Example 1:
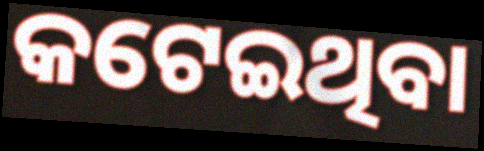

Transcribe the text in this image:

କଟେଇଥିବା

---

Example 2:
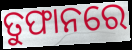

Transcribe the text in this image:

ତୁଫାନରେ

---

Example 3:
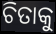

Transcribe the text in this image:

ଚିତାକୁ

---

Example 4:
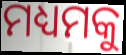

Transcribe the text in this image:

ମଧ୍ୟମକୁ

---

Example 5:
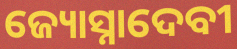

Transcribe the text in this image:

ଜ୍ୟୋସ୍ନାଦେବୀ